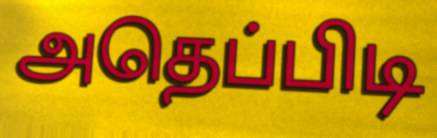
அதெப்பிடி